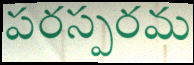
పరస్పరమ